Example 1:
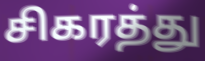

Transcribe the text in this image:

சிகரத்து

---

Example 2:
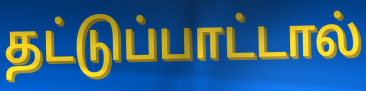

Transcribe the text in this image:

தட்டுப்பாட்டால்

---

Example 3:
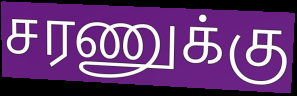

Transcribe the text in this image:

சரணுக்கு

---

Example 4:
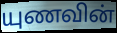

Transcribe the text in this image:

யுணவின்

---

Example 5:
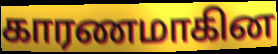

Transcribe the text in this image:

காரணமாகின